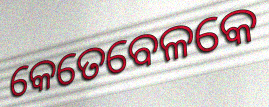
କେତେବେଳକେ